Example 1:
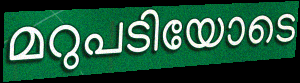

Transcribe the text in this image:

മറുപടിയോടെ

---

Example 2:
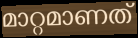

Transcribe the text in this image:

മാറ്റമാണത്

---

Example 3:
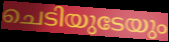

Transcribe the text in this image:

ചെടിയുടേയും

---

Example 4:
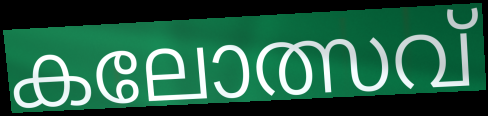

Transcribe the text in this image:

കലോത്സവ്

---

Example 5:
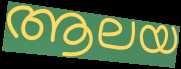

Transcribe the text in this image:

ആലയ